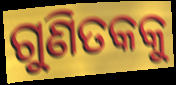
ଗୁଣିତକକୁ